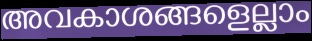
അവകാശങ്ങളെല്ലാം